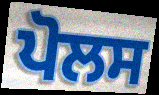
ਪੋਲਸ